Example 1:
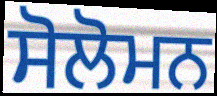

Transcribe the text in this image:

ਸੋਲੋਮਨ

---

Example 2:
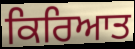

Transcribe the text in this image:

ਕਿਰਿਆਤ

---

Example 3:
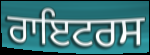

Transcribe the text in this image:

ਰਾਇਟਰਸ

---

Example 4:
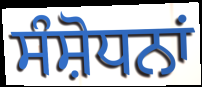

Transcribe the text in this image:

ਸੰਸ਼ੋਧਨਾਂ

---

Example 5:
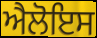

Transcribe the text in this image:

ਐਲੋਇਸ